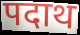
पदाथ